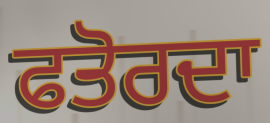
ਫਤੋਰਦਾ